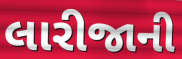
લારીજાની